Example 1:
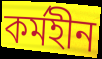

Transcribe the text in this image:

কৰ্মহীন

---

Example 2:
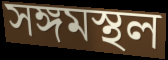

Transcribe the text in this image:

সঙ্গমস্থল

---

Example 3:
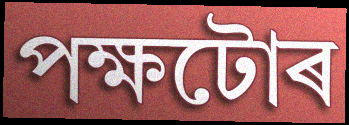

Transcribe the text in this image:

পক্ষটোৰ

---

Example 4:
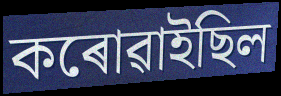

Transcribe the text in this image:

কৰোৱাইছিল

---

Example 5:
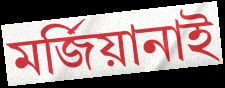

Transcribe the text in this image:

মৰ্জিয়ানাই